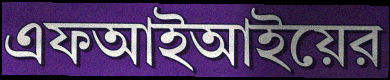
এফআইআইয়ের